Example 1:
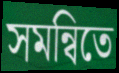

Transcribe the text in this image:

সমন্বিতে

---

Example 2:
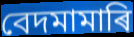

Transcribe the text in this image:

বেদমামাৰি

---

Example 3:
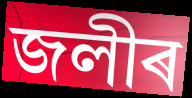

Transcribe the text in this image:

জলীৰ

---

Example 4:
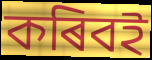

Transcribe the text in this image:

কৰিবই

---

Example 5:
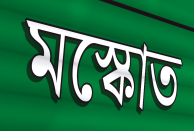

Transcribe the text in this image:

মস্কোত